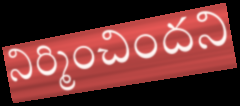
నిర్మించిందని